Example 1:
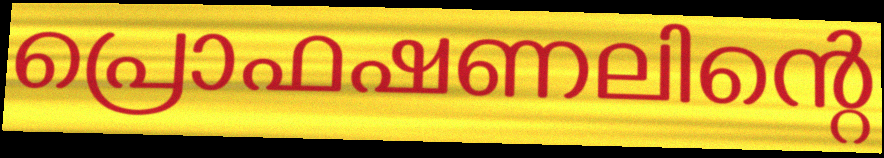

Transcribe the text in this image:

പ്രൊഫഷണലിന്റെ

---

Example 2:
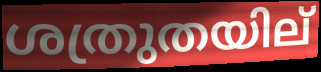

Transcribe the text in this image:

ശത്രുതയില്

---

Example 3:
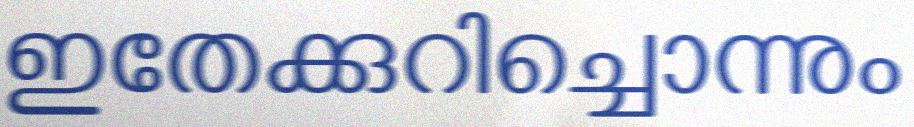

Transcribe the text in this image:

ഇതേക്കുറിച്ചൊന്നും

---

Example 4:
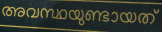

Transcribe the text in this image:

അവസ്ഥയുണ്ടായത്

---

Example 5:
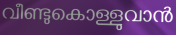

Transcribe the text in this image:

വീണ്ടുകൊള്ളുവാൻ